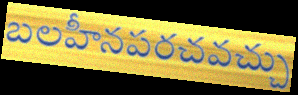
బలహీనపరచవచ్చు